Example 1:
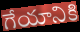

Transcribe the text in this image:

గేయానికి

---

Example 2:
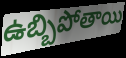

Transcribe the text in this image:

ఉబ్బిపోతాయి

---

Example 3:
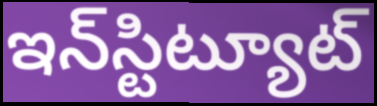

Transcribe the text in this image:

ఇన్‌స్టిట్యూట్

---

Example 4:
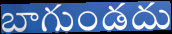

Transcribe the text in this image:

బాగుండదు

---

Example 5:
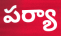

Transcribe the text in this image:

పర్యా